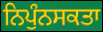
ਨਿਪੁੰਨਸਕਤਾ